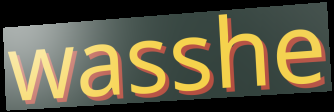
wasshe